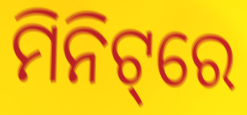
ମିନିଟ୍‌ରେ